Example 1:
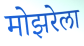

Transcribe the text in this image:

मोझरेला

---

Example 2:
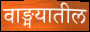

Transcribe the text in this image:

वाङ्मयातील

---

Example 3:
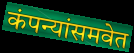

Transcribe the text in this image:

कंपन्यांसमवेत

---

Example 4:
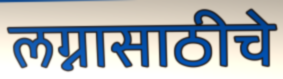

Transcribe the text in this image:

लग्नासाठीचे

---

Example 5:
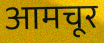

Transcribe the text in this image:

आमचूर